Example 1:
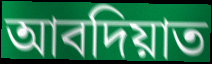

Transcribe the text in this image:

আবদিয়াত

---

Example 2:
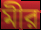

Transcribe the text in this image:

মীর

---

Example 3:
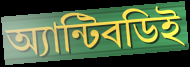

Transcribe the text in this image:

অ্যান্টিবডিই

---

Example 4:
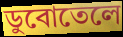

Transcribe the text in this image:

ডুবোতেলে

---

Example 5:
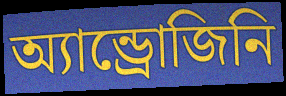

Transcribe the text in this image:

অ্যান্ড্রোজিনি